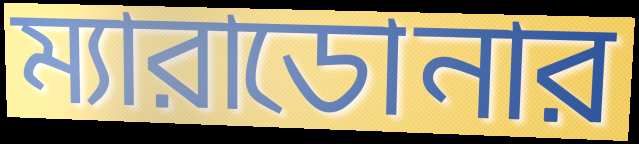
ম্যারাডোনার